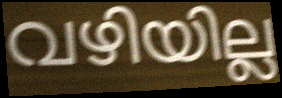
വഴിയില്ല